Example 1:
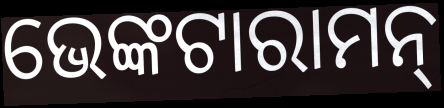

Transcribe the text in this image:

ଭେଙ୍କଟାରାମନ୍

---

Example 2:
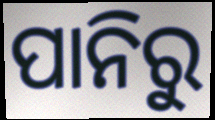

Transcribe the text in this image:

ପାନିରୁ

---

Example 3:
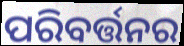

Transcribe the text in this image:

ପରିବର୍ତ୍ତନର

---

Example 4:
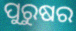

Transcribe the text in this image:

ପୁରୁଷର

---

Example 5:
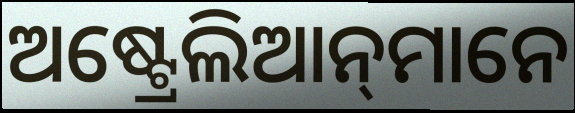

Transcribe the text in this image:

ଅଷ୍ଟ୍ରେଲିଆନ୍‌ମାନେ